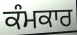
ਕੰਮਕਾਰ